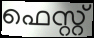
ഫെസ്റ്റ്